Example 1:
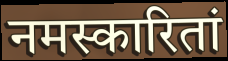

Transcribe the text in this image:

नमस्कारितां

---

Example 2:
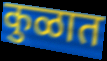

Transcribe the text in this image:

कुळात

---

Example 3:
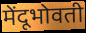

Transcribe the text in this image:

मेंदूभोवती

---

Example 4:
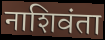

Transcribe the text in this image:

नाशिवंता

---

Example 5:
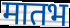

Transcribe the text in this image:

मातभ